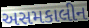
અસમકાલીન